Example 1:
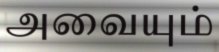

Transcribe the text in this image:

அவையும்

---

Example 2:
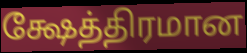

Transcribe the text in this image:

க்ஷேத்திரமான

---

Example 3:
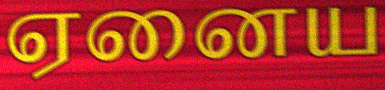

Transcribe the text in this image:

ஏனைய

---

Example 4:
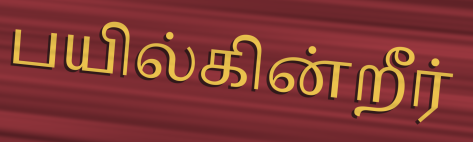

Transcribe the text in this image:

பயில்கின்றீர்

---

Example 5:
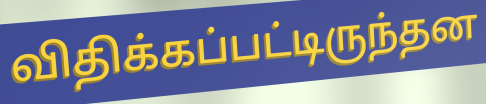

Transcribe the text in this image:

விதிக்கப்பட்டிருந்தன